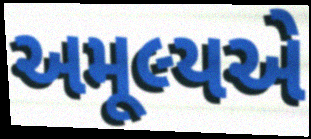
અમૂલ્યએ